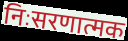
निःसरणात्मक